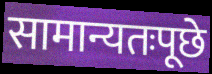
सामान्यतःपूछे